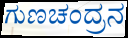
ಗುಣಚಂದ್ರನ